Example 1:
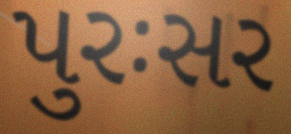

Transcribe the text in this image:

પુરઃસર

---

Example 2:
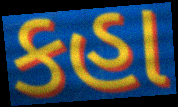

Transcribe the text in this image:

કહા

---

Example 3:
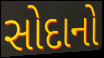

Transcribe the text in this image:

સોદાનો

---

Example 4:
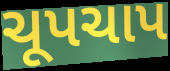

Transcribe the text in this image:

ચૂપચાપ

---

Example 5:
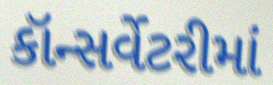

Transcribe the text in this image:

કૉન્સર્વેટરીમાં